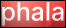
phala